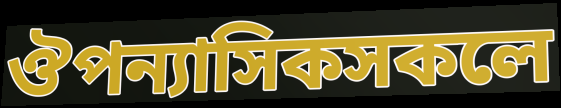
ঔপন্যাসিকসকলে